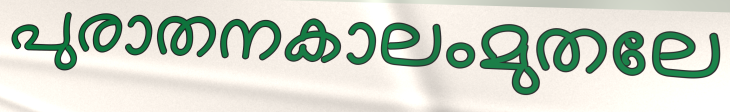
പുരാതനകാലംമുതലേ